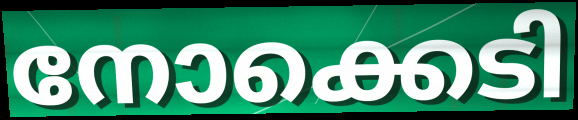
നോക്കെടി